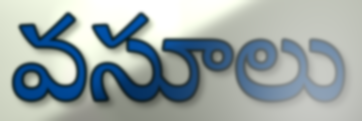
వసూలు